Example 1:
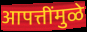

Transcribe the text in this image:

आपत्तींमुळे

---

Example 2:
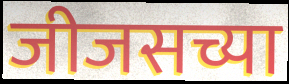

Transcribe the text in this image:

जीजसच्या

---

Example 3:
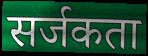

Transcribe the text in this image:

सर्जकता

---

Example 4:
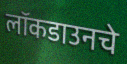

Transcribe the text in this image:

लॉकडाउनचे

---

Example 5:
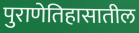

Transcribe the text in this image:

पुराणेतिहासातील